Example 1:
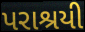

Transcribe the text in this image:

પરાશ્રયી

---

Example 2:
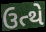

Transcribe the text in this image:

ઉત્થે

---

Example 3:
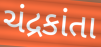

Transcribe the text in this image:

ચંદ્રકાંતા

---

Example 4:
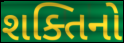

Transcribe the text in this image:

શક્તિનો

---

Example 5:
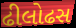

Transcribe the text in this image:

ઢીલોઢસ